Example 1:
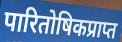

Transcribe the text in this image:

पारितोषिकप्राप्त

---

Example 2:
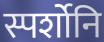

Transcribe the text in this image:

स्पर्शोनि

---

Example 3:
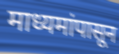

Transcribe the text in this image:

माध्यमांपासून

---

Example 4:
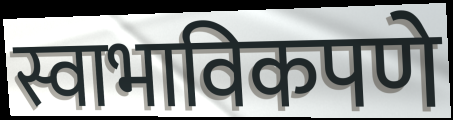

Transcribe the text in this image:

स्वाभाविकपणे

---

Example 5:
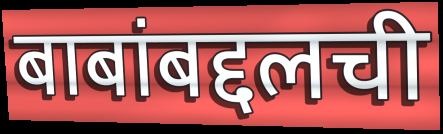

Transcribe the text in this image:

बाबांबद्दलची